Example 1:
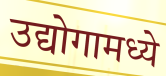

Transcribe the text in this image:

उद्योगामध्ये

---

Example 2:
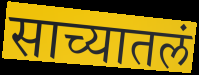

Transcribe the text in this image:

साच्यातलं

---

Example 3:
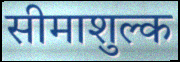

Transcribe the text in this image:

सीमाशुल्क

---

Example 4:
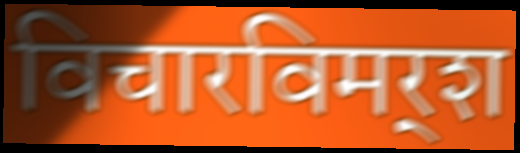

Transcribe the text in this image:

विचारविमर्श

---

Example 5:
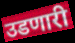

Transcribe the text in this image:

उडणारी